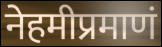
नेहमीप्रमाणं